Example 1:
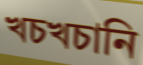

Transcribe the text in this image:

খচখচানি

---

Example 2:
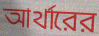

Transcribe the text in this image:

আর্থারের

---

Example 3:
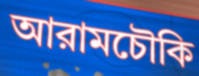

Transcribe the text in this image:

আরামচৌকি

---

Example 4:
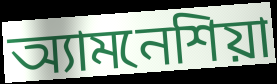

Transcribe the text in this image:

অ্যামনেশিয়া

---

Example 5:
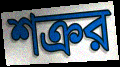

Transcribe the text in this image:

শক্রর